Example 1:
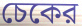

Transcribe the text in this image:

চেকের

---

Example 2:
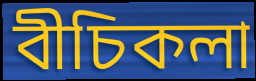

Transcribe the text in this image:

বীচিকলা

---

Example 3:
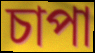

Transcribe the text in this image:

চাপা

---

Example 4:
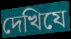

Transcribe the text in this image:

দেখিযে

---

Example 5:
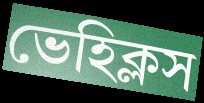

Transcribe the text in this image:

ভেহিক্লস